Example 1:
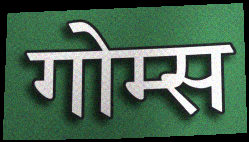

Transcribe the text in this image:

गोम्स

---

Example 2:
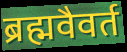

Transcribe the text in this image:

ब्रह्मवैवर्त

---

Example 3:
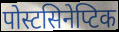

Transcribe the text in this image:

पोस्टसिनेप्टिक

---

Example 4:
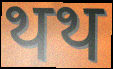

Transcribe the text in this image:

थथ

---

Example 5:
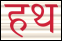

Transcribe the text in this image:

हथ